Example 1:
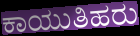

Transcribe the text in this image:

ಕಾಯುತಿಹರು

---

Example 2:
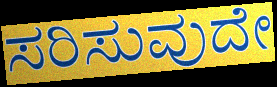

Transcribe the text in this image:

ಸರಿಸುವುದೇ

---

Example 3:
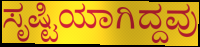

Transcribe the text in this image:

ಸೃಷ್ಟಿಯಾಗಿದ್ದವು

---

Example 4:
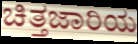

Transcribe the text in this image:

ಚಿತ್ತಜಾರಿಯ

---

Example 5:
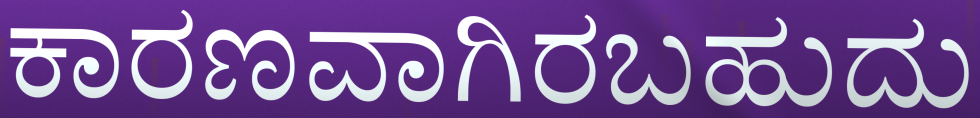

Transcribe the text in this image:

ಕಾರಣವಾಗಿರಬಹುದು